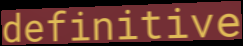
definitive